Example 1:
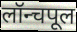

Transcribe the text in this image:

लॉन्चपूल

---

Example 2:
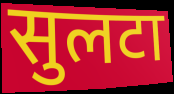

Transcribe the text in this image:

सुलटा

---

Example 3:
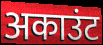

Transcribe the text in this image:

अकाउंट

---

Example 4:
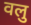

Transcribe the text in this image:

वलु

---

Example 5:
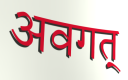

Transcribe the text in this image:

अवगत्